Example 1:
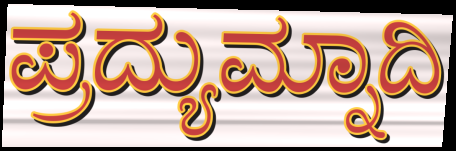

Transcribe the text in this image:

ಪ್ರದ್ಯುಮ್ನಾದಿ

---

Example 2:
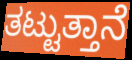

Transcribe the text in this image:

ತಟ್ಟುತ್ತಾನೆ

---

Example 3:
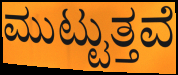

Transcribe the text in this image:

ಮುಟ್ಟುತ್ತವೆ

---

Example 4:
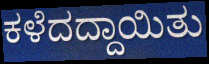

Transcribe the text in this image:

ಕಳೆದದ್ದಾಯಿತು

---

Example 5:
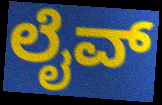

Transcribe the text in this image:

ಲೈವ್